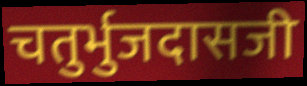
चतुर्भुजदासजी